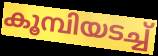
കൂമ്പിയടച്ച്